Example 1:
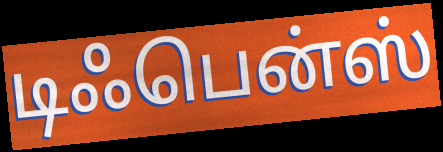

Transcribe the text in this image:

டிஃபென்ஸ்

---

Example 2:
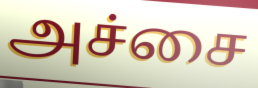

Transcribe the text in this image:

அச்சை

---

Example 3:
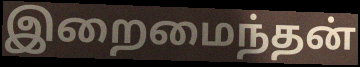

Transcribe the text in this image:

இறைமைந்தன்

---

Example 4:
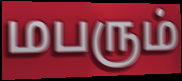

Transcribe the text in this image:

மபரும்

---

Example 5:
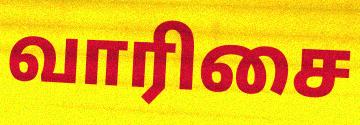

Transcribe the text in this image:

வாரிசை